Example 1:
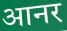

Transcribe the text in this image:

आनर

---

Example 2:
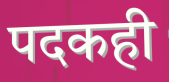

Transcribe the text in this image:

पदकही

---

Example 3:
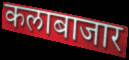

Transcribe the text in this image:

कलाबाजार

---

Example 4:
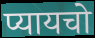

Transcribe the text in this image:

प्यायचो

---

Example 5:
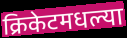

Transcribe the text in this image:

क्रिकेटमधल्या